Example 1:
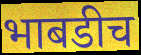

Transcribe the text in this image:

भाबडीच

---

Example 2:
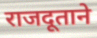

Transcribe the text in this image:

राजदूताने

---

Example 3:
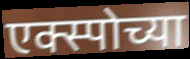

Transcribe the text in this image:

एक्स्पोच्या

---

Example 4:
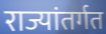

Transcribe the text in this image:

राज्यांतर्गत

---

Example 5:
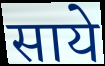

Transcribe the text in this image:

साये